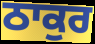
ਠਾਕੁਰ